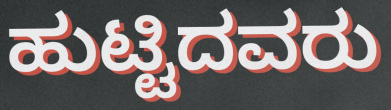
ಹುಟ್ಟಿದವರು